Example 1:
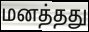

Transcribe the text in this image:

மனத்தது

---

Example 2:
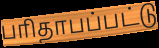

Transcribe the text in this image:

பரிதாபப்பட்டு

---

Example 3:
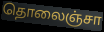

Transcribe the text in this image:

தொலைஞ்சா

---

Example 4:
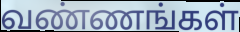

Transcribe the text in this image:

வண்ணங்கள்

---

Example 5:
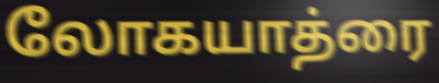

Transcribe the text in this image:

லோகயாத்ரை